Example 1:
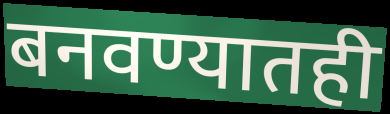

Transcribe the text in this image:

बनवण्यातही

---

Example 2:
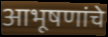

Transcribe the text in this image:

आभूषणांचे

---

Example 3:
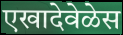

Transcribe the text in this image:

एखादेवेळेस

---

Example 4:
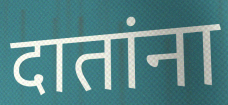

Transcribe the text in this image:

दातांना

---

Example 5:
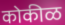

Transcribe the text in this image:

कोकीळ